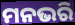
ମନଭରି